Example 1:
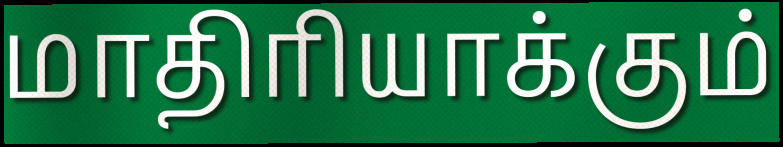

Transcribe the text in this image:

மாதிரியாக்கும்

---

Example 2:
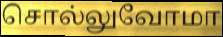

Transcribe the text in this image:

சொல்லுவோமா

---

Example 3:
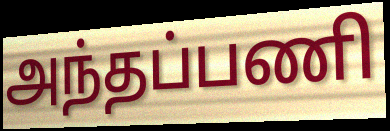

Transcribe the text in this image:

அந்தப்பணி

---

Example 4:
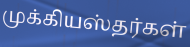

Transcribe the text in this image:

முக்கியஸ்தர்கள்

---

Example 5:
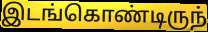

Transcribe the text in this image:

இடங்கொண்டிருந்